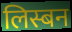
लिस्बन